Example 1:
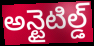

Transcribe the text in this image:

అన్టైటిల్డ్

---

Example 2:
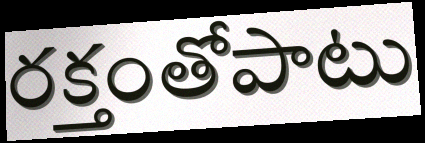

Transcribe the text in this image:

రక్తంతోపాటు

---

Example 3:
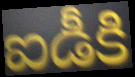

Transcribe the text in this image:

ఐడీకి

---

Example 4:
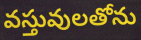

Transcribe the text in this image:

వస్తువులతోను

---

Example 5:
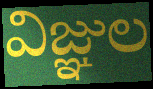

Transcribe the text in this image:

విజ్ఞుల